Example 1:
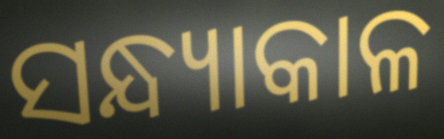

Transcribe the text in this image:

ସନ୍ଧ୍ୟାକାଳ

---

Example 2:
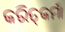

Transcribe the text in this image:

କରିତ୍‍କର୍ମା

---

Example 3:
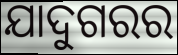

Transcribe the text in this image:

ଯାଦୁଗରର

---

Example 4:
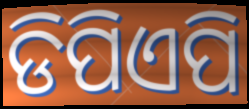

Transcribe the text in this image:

ଡିପିଏପି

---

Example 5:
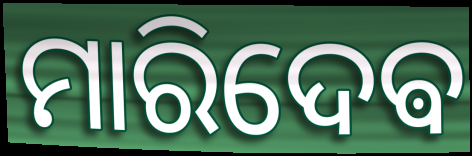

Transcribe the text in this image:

ମାରିଦେଵ